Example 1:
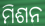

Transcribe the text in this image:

ମିଶନ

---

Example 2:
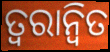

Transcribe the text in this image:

ତ୍ୱରାନ୍ୱିତ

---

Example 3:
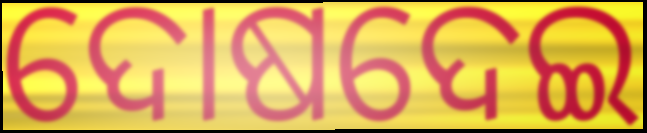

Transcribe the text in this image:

ଦୋଷଦେଇ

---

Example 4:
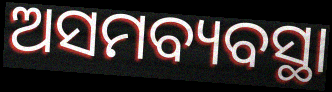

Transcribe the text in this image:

ଅସମବ୍ୟବସ୍ଥା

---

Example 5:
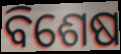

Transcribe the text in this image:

ବିଶେଷ